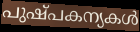
പുഷ്പകന്യകൾ